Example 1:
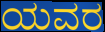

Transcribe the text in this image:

ಯವರ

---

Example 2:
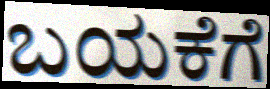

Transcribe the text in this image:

ಬಯಕೆಗೆ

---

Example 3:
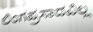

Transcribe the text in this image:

ಲಿಂಗಪ್ರಸಾದವಿಲ್ಲ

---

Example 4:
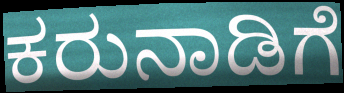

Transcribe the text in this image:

ಕರುನಾಡಿಗೆ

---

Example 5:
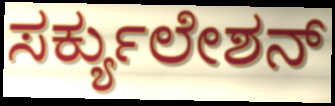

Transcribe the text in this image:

ಸರ್ಕ್ಯುಲೇಶನ್